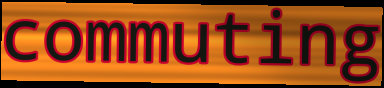
commuting